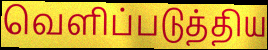
வெளிப்படுத்திய